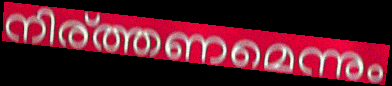
നിര്ത്തണമെന്നും